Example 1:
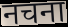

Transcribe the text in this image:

नचना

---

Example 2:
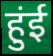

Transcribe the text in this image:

हुंई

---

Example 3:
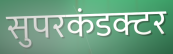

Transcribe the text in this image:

सुपरकंडक्टर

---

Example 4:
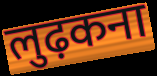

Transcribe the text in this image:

लुढ़कना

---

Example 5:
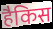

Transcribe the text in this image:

हैकिस